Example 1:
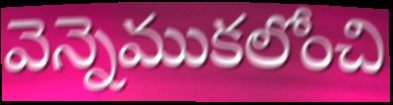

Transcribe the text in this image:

వెన్నెముకలోంచి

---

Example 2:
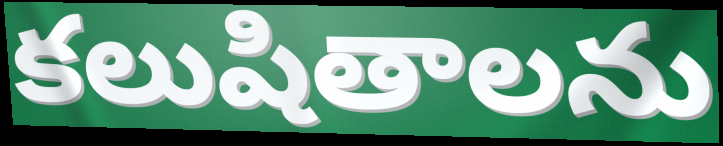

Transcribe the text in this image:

కలుషితాలను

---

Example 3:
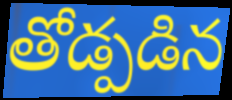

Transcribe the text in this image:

తోడ్పడిన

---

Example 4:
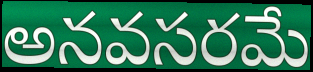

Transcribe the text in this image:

అనవసరమే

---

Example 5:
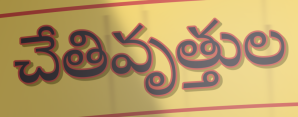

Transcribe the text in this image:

చేతివృత్తుల